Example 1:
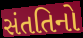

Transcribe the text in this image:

સંતતિનો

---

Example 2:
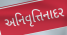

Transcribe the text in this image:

અનિવૃત્તિનાદર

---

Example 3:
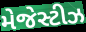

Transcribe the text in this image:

મેજેસ્ટીઝ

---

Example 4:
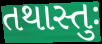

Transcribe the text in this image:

તથાસ્તુઃ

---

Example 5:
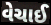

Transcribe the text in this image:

વેચાઈ